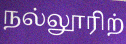
நல்லூரிற்